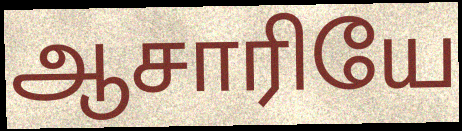
ஆசாரியே